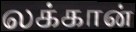
லக்கான்